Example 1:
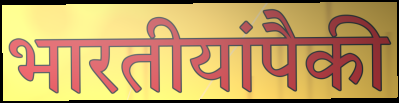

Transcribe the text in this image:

भारतीयांपैकी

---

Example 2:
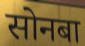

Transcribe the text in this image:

सोनबा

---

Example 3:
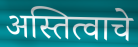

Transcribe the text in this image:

अस्तित्वाचे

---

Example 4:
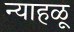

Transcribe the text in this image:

न्याहळू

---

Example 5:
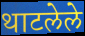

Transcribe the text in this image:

थाटलेले